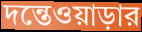
দন্তেওয়াড়ার